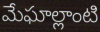
మేఘాల్లాంటి